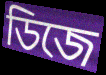
ডিজে